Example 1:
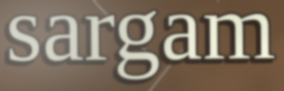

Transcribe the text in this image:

sargam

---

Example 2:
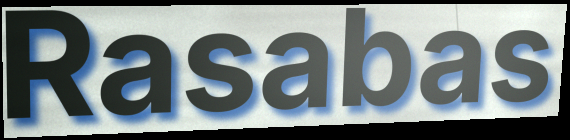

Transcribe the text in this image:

Rasabas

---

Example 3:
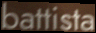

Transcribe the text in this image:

battista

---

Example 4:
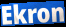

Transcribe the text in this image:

Ekron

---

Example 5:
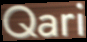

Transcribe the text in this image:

Qari